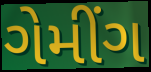
ગેમીંગ